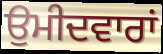
ਉਮੀਦਵਾਰਾਂ